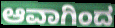
ಆವಾಗಿಂದ